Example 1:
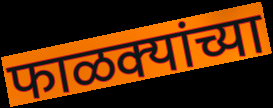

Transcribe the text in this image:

फाळक्यांच्या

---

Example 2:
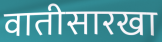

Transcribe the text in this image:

वातीसारखा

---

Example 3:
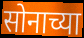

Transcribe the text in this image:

सोनाच्या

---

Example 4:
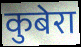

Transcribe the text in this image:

कुबेरा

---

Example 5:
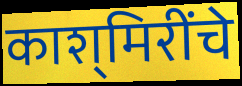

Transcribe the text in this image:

काश्मिरींचे